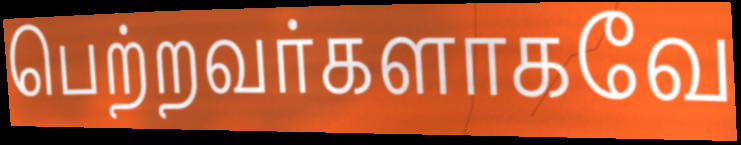
பெற்றவர்களாகவே